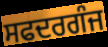
ਸਫਦਰਗੰਜ